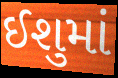
ઈશુમાં